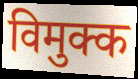
विमुक्क